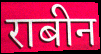
राबीन